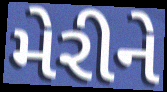
મેરીને